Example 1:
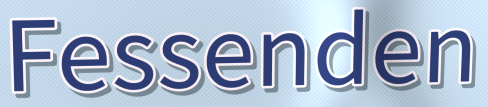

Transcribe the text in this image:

Fessenden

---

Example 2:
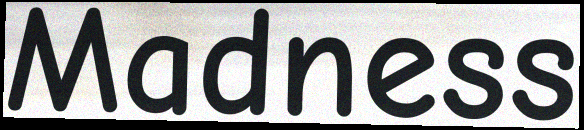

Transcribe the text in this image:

Madness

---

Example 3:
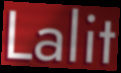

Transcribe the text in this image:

Lalit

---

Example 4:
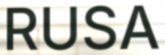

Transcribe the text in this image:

RUSA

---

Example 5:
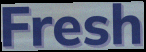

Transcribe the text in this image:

Fresh